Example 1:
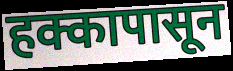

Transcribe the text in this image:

हक्कापासून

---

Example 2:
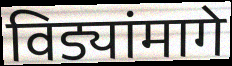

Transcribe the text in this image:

विड्यांमागे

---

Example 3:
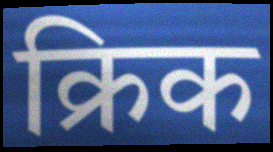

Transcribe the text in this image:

क्रिक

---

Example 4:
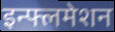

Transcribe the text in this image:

इन्फ्लमेशन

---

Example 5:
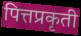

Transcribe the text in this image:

पित्तप्रकृती